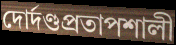
দোর্দণ্ডপ্রতাপশালী